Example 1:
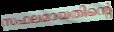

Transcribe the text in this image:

സഫലമായതിന്റെ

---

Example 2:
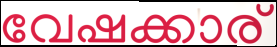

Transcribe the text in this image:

വേഷക്കാര്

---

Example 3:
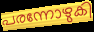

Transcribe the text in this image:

പരന്നോഴുകി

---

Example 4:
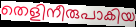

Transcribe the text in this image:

തെളിനീരുപാകിയ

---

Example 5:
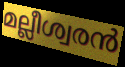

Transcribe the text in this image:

മല്ലീശ്വരൻ